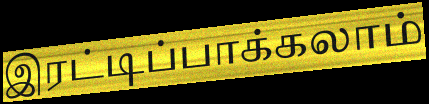
இரட்டிப்பாக்கலாம்